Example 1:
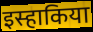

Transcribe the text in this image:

इस्हाकिया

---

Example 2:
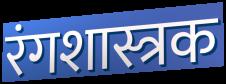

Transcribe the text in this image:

रंगशास्त्रक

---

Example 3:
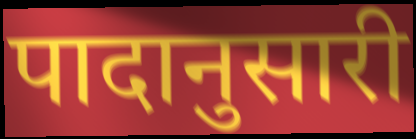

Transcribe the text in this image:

पादानुसारी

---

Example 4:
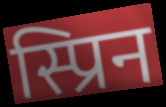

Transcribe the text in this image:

स्प्रिन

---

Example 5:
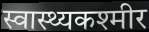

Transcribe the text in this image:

स्वास्थ्यकश्‍मीर